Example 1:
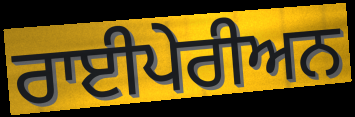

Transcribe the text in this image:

ਰਾਈਪੇਰੀਅਨ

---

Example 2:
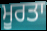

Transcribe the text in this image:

ਮੂਰਤਾ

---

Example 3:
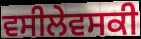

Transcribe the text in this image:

ਵਸੀਲੇਵਸਕੀ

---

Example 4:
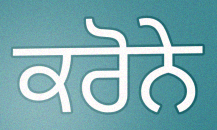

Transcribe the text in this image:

ਕਰੋਨੇ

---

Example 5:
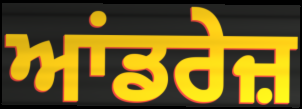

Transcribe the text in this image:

ਆਂਡਰੇਜ਼